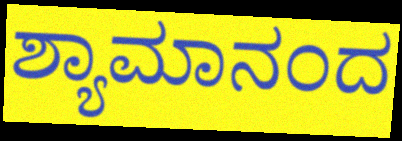
ಶ್ಯಾಮಾನಂದ